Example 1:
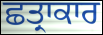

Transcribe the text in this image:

ਛਤ੍ਰਾਕਾਰ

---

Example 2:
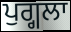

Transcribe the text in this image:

ਪੁਗ੍ਗਲਾ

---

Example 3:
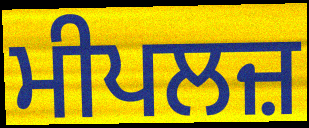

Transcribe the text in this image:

ਮੀਪਲਜ਼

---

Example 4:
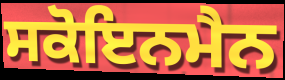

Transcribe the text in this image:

ਸਕੋਇਨਮੈਨ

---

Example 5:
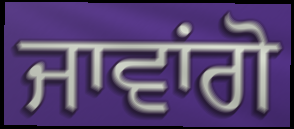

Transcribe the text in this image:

ਜਾਵਾਂਗੋ